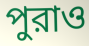
পুরাও